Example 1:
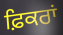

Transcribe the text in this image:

ਫ਼ਿਕਰਾਂ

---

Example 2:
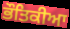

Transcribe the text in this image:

ਭੌਤਿਕੀਆ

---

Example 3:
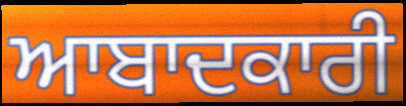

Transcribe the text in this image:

ਆਬਾਦਕਾਰੀ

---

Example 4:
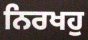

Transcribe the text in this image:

ਨਿਰਖਹੁ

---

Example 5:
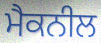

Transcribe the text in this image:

ਮੈਕਨੀਲ